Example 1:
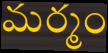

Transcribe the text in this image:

మర్మం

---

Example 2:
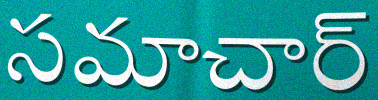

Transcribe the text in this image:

సమాచార్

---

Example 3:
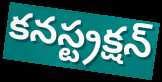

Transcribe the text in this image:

కనస్ట్రక్షన్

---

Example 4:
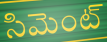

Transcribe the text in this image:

సిమెంట్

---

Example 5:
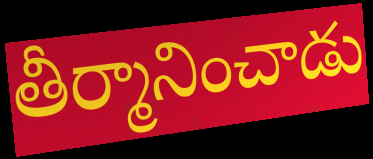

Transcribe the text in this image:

తీర్మానించాడు